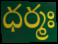
ధర్మః